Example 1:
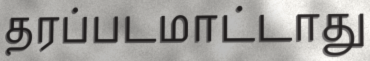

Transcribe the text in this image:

தரப்படமாட்டாது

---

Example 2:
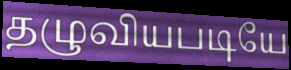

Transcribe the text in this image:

தழுவியபடியே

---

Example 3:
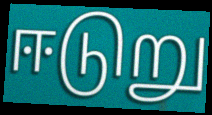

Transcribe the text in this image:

ஈடுறு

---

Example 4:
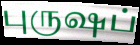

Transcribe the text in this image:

புருஷப்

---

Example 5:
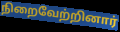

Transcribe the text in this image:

நிறைவேற்றினார்